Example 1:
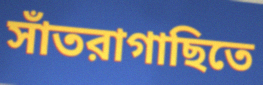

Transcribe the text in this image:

সাঁতরাগাছিতে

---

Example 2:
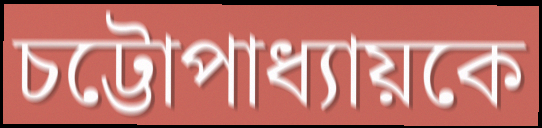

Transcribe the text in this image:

চট্টোপাধ্যায়কে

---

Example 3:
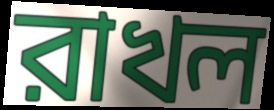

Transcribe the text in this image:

রাখল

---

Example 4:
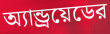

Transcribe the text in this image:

অ্যান্ড্রয়েডের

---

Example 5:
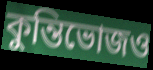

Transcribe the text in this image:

কুন্তিভোজও